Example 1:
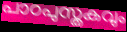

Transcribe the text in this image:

പാഠപുസ്തകവും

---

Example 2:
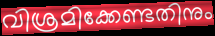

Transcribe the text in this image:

വിശ്രമിക്കേണ്ടതിനും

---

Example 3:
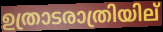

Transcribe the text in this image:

ഉത്രാടരാത്രിയില്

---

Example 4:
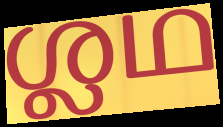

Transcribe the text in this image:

ശ്ലഥ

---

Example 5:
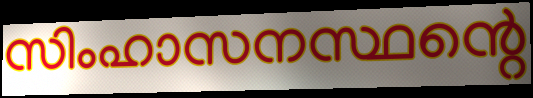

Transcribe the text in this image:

സിംഹാസനസ്ഥന്റെ